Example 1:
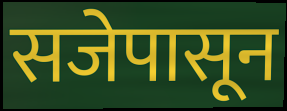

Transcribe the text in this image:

सजेपासून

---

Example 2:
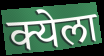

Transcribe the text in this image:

क्येला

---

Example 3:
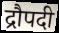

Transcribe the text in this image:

द्रौपदी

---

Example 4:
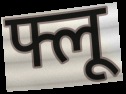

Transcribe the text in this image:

फ्लू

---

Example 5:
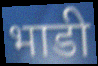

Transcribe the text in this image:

भाडी